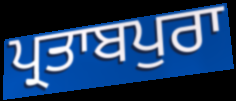
ਪ੍ਰਤਾਬਪੁਰਾ